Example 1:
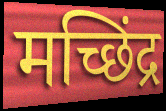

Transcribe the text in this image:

मच्छिंद्र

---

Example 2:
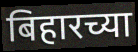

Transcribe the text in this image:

बिहारच्या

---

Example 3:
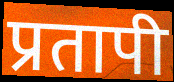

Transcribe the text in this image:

प्रतापी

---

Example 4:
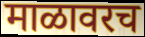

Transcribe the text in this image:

माळावरच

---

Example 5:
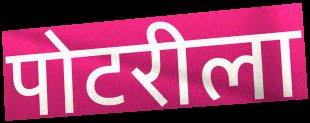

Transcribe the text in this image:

पोटरीला